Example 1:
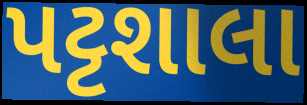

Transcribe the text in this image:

પટ્ટશાલા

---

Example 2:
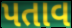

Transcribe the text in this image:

પતાવ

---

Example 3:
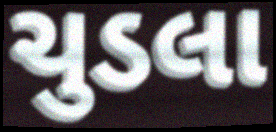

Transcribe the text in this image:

ચુડલા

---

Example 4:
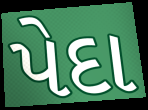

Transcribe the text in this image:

પેદા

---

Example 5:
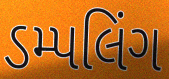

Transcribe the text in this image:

ડમ્પલિંગ